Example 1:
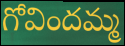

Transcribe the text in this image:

గోవిందమ్మ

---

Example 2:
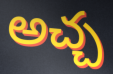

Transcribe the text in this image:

అచ్చ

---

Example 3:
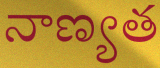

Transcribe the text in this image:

నాణ్యత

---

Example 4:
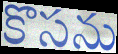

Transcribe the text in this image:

కొసను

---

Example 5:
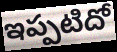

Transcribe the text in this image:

ఇప్పటిదో